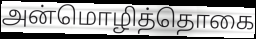
அன்மொழித்தொகை